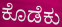
ಕೊಡೆಕು